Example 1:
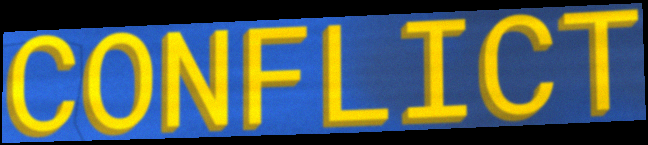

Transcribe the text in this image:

CONFLICT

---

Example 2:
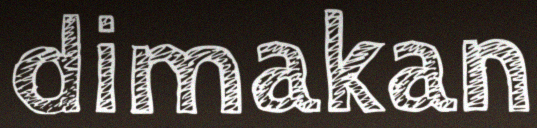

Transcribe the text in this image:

dimakan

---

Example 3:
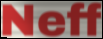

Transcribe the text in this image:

Neff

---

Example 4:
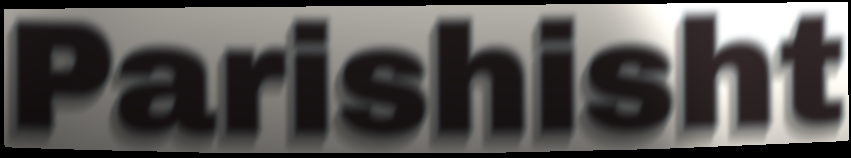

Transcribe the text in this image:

Parishisht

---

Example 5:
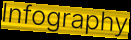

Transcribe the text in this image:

Infography